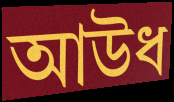
আউধ